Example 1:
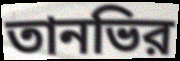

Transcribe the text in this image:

তানভির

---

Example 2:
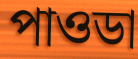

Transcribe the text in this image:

পাওডা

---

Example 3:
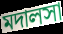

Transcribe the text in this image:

মদালসা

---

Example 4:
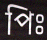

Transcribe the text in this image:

পিঃ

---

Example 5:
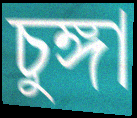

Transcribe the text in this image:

চুঙ্গা